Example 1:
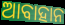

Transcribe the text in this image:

ଆବାହାନ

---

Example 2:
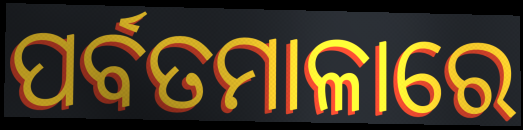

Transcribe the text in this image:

ପର୍ବତମାଳାରେ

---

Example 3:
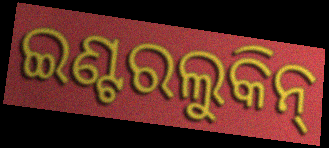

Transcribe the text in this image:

ଇଣ୍ଟରଲୁକିନ୍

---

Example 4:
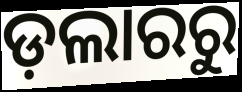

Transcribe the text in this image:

ଡ଼ଲାରରୁ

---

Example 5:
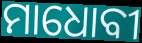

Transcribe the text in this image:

ମାଧୋବୀ